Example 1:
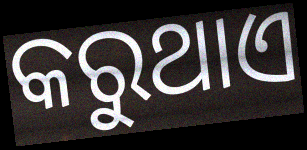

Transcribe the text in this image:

କରୁଥାଏ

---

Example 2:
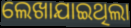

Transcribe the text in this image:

ଲେଖାଯାଇଥିଲା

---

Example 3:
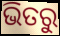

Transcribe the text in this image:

ଭିତରୁ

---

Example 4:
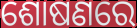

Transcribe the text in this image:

ଶୋଷଣରେ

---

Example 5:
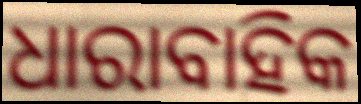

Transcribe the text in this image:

ଧାରାବାହିକ